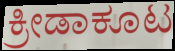
ಕ್ರೀಡಾಕೂಟ